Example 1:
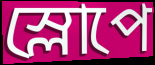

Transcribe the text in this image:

স্লোপে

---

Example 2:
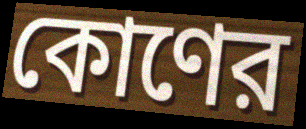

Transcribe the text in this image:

কোণের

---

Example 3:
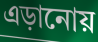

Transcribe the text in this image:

এড়ানোয়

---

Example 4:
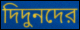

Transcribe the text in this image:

দিদুনদের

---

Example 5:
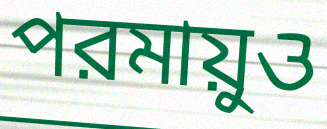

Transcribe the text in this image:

পরমায়ুও